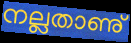
നല്ലതാണു്